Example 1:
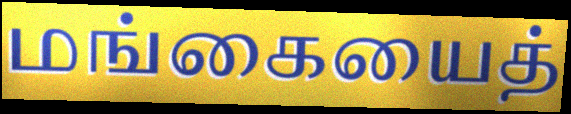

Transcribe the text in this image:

மங்கையைத்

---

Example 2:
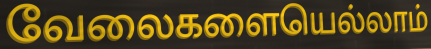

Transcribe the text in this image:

வேலைகளையெல்லாம்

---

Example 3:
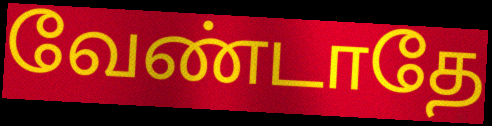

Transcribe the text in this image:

வேண்டாதே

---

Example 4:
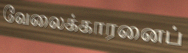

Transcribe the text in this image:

வேலைக்காரனைப்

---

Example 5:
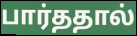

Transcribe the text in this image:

பார்ததால்